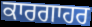
ਕਾਰਗਾਹਰ